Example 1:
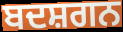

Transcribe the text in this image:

ਬਦਸ਼ਗਨ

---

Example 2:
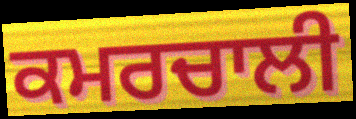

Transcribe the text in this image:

ਕਮਰਚਾਲੀ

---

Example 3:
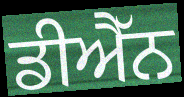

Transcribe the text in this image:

ਡੀਐੱਨ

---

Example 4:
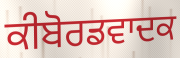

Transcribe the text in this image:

ਕੀਬੋਰਡਵਾਦਕ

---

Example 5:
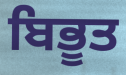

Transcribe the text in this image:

ਬਿਭੂਤ